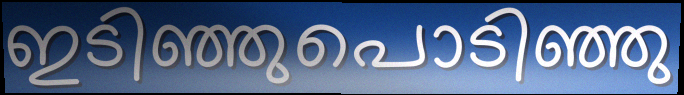
ഇടിഞ്ഞുപൊടിഞ്ഞു